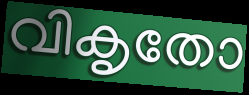
വികൃതോ